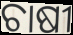
ଚାଷୀ